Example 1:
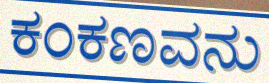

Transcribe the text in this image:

ಕಂಕಣವನು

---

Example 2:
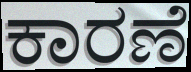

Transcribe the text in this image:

ಕಾರಣೆ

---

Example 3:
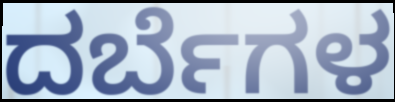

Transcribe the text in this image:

ದರ್ಬೆಗಳ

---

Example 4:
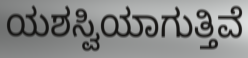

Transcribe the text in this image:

ಯಶಸ್ವಿಯಾಗುತ್ತಿವೆ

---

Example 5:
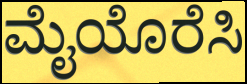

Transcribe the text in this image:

ಮೈಯೊರೆಸಿ